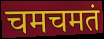
चमचमतं